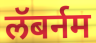
लॅबर्नम